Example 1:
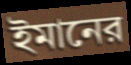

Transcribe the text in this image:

ইমানের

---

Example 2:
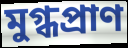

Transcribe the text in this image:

মুগ্ধপ্রাণ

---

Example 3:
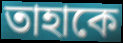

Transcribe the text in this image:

তাহাকে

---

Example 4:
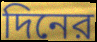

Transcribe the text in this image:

দিনের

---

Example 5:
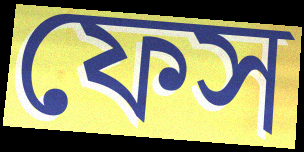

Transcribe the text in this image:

ফেস